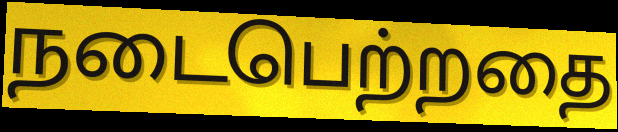
நடைபெற்றதை